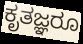
ಕೃತಜ್ಞರೂ